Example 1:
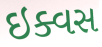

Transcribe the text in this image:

ઇક્વસ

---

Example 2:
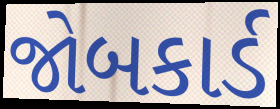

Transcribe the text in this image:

જોબકાર્ડ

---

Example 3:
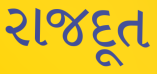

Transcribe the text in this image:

રાજદૂત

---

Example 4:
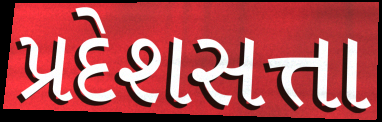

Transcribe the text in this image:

પ્રદેશસત્તા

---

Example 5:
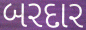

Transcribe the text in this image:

બરદાર